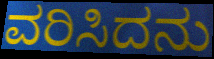
ವರಿಸಿದನು